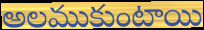
అలముకుంటాయి